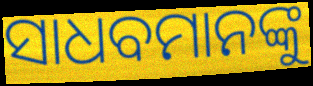
ସାଧବମାନଙ୍କୁ